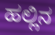
ಹಲ್ಲಿನ